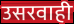
उसरवाही